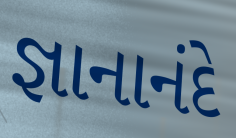
જ્ઞાનાનંદે